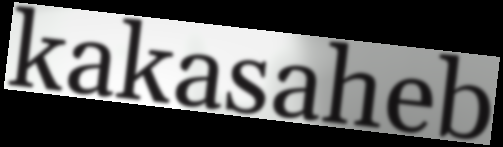
kakasaheb